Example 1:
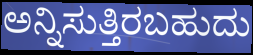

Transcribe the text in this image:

ಅನ್ನಿಸುತ್ತಿರಬಹುದು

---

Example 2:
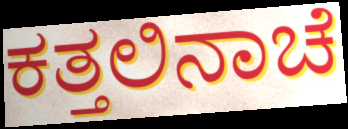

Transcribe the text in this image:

ಕತ್ತಲಿನಾಚೆ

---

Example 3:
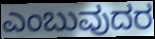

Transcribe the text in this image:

ಎಂಬುವುದರ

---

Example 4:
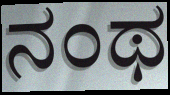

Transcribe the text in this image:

ನಂಥ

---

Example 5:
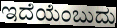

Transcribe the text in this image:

ಇದೆಯೆಂಬುದು